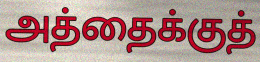
அத்தைக்குத்